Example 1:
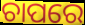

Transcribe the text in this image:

ଚାପରେ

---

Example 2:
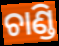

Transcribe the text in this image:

ଚାଣ୍ଡି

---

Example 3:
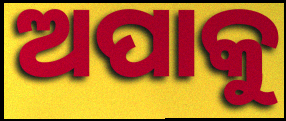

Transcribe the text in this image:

ଅପାକୁ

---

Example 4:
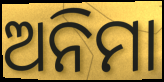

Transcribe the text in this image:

ଅନିମା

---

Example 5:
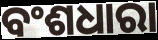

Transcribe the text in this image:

ବଂଶଧାରା